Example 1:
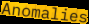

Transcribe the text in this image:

Anomalies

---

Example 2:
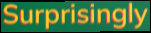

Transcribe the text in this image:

Surprisingly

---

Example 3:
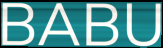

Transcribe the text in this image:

BABU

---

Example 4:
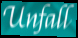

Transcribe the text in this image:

Unfall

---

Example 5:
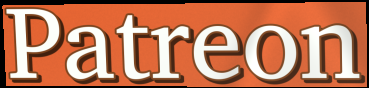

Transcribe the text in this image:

Patreon